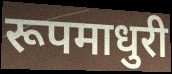
रूपमाधुरी